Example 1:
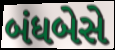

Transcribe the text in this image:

બંધબેસે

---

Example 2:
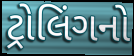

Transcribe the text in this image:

ટ્રોલિંગનો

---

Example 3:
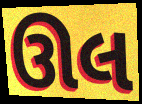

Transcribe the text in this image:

ઊલ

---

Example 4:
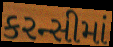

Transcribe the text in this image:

કરન્સીમાં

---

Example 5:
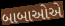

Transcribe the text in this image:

બાબાઓએ